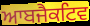
ਆਬਜੈਕਟਿਵ